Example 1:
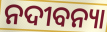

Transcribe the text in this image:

ନଦୀବନ୍ୟା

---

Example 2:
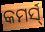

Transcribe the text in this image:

କମର୍ସ୍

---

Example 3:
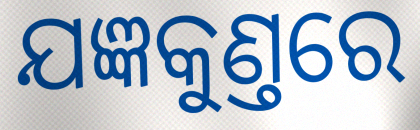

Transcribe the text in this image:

ଯଜ୍ଞକୁଣ୍ତରେ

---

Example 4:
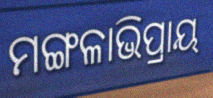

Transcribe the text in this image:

ମଙ୍ଗଳାଭିପ୍ରାୟ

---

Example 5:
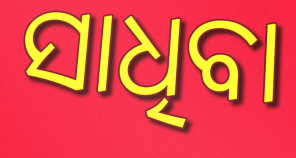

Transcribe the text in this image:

ସାଧିବା